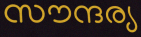
സൗന്ദര്യ